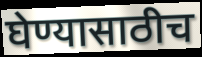
घेण्यासाठीच